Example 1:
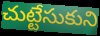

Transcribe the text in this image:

చుట్టేసుకుని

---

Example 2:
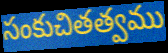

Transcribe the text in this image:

సంకుచితత్వము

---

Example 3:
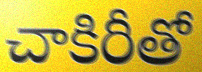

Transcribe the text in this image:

చాకిరీతో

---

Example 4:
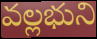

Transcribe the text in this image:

వల్లభుని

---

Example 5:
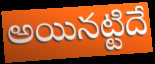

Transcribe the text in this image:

అయినట్టిదే